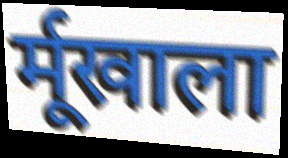
र्मूखाला